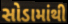
સોડામાંથી